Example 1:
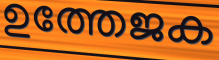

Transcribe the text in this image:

ഉത്തേജക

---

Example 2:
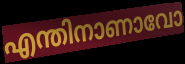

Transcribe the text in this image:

എന്തിനാണാവോ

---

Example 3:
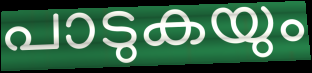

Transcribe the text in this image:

പാടുകയും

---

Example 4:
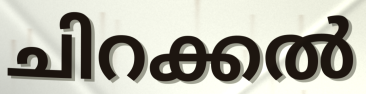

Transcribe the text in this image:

ചിറക്കൽ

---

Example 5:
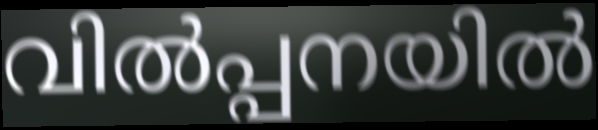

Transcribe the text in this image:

വിൽപ്പനയിൽ